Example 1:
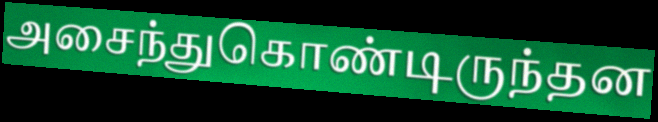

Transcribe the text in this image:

அசைந்துகொண்டிருந்தன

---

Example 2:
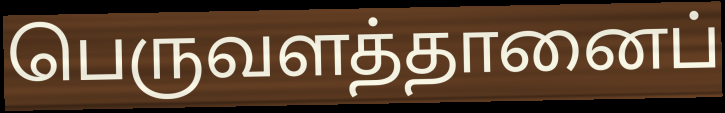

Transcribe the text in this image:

பெருவளத்தானைப்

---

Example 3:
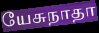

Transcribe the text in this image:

யேசுநாதா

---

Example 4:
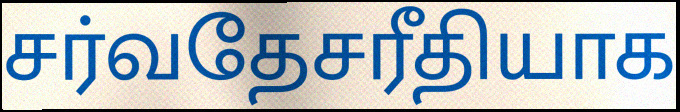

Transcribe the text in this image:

சர்வதேசரீதியாக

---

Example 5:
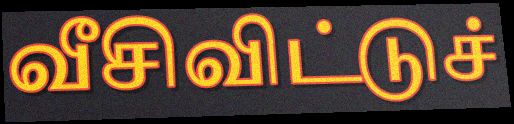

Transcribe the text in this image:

வீசிவிட்டுச்